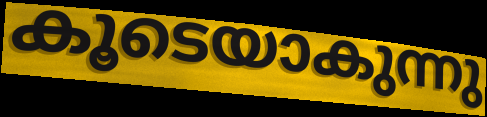
കൂടെയാകുന്നു